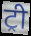
ट्री